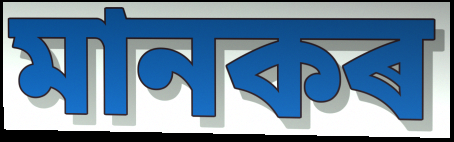
মানকৰ